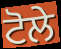
ਟੋਲੇ